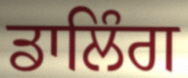
ਡਾਲਿੰਗ